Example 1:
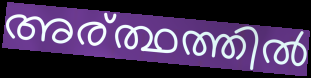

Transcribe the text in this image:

അര്ത്ഥത്തിൽ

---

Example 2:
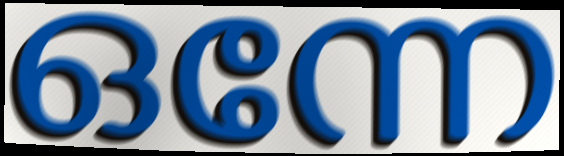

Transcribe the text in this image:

ഒന്നേ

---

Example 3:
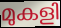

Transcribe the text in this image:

മുകളി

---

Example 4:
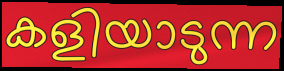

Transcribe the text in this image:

കളിയാടുന്ന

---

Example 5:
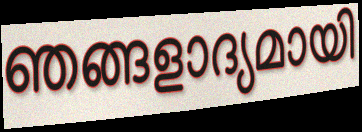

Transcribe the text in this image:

ഞങ്ങളാദ്യമായി